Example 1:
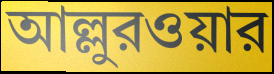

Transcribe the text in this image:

আল্লুরওয়ার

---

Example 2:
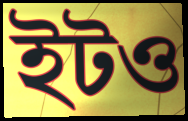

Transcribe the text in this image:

ইটও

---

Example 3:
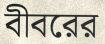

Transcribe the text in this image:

বীবরের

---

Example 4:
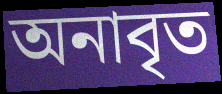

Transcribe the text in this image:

অনাবৃত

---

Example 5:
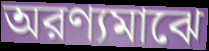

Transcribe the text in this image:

অরণ্যমাঝে